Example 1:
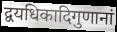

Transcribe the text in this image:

द्वयधिकादिगुणानां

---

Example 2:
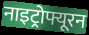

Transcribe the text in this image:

नाइट्रोफ्यूरन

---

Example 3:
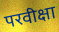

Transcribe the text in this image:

परवीक्षा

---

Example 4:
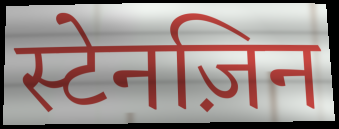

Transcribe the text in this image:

स्टेनज़िन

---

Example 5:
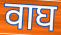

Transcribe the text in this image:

वाघ